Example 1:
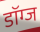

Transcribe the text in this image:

डॉग्ज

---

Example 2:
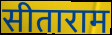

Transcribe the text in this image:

सीताराम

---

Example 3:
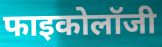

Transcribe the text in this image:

फाइकोलॉजी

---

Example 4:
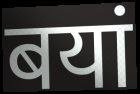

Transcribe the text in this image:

बयां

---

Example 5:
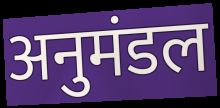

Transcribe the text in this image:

अनुमंडल